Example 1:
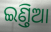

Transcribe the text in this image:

ଇଣ୍ତିଆ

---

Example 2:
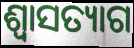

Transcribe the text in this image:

ଶ୍ବାସତ୍ୟାଗ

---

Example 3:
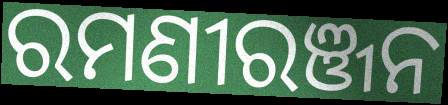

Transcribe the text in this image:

ରମଣୀରଞ୍ଜନ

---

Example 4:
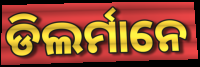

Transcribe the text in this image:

ଡିଲର୍ମାନେ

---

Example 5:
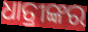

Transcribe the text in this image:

ଧାତ୍ରୀଙ୍କର